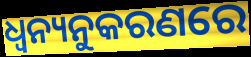
ଧ୍ଵନ୍ୟନୁକରଣରେ